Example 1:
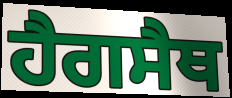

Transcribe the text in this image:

ਹੈਗਸੈਥ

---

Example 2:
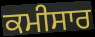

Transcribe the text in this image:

ਕਮੀਸਾਰ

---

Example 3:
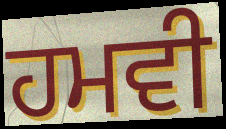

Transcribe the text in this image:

ਹਮਵੀ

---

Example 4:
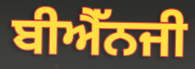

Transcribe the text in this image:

ਬੀਐੱਨਜੀ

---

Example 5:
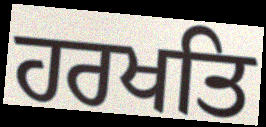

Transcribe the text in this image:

ਹਰਖਤਿ